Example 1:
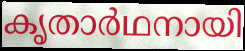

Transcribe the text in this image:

കൃതാർഥനായി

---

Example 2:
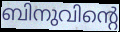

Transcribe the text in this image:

ബിനുവിന്റെ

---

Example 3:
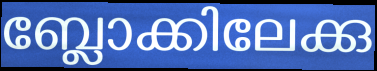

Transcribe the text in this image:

ബ്ലോക്കിലേക്കു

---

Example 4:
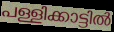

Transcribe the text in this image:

പള്ളിക്കാട്ടിൽ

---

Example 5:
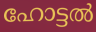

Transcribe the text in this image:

ഹോട്ടൽ